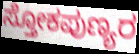
ಸ್ತೋಕಪುಣ್ಯರ